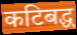
कटिबद्ध